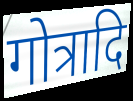
गोत्रादि